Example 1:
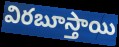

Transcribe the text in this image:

విరబూస్తాయి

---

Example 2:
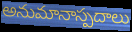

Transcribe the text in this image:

అనుమానాస్పదాలు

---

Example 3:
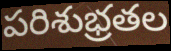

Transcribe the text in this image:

పరిశుభ్రతల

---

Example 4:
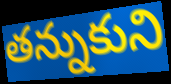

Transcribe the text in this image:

తన్నుకుని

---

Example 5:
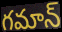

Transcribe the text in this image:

గమాన్